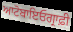
ਆਟੋਬਾਇਓਗ੍ਰਾਫ਼ੀ